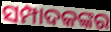
ସମ୍ପାଦକଙ୍କର